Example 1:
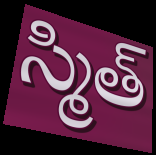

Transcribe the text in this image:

స్మిత్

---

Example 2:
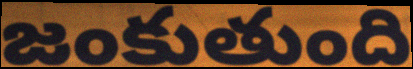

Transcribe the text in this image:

జంకుతుంది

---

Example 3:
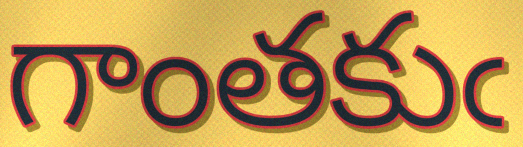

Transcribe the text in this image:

గాంతకుఁ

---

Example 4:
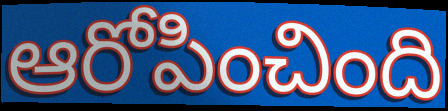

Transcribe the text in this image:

ఆరోపించింది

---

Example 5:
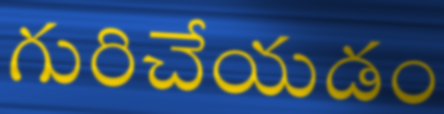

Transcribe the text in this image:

గురిచేయడం